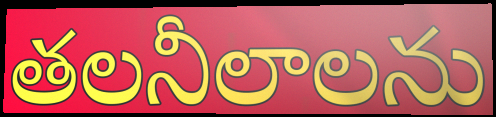
తలనీలాలను